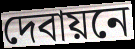
দেবায়নে